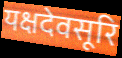
यक्षदेवसूरि